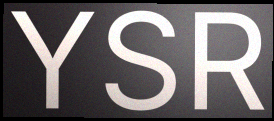
YSR